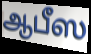
ஆபீஸ